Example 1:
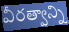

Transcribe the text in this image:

వీరత్వాన్ని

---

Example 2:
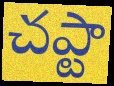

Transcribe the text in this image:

చఎ్టా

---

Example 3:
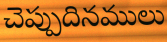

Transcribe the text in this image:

చెప్పుదినములు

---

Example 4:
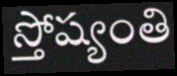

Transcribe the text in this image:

స్తోష్యంతి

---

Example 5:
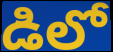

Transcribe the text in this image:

డిలో